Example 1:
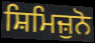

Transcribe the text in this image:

ਸ਼ਿਮਿਜ਼ੁਨੋ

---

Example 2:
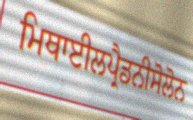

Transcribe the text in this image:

ਮਿਥਾਈਲਪ੍ਰੈਡਨੀਸੋਲੋਨ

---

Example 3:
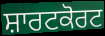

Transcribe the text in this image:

ਸ਼ਾਰਟਕੋਰਟ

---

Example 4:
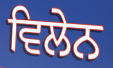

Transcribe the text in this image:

ਵਿਲੇਨ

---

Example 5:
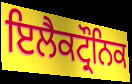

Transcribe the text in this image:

ਇਲੈਕਟ੍ਰੌਨਿਕ